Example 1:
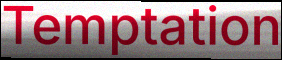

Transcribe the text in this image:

Temptation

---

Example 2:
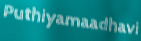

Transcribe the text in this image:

Puthiyamaadhavi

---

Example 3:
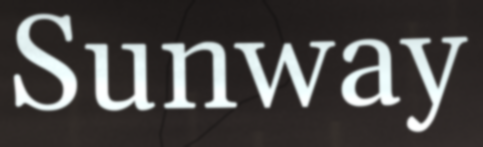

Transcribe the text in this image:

Sunway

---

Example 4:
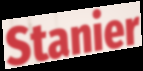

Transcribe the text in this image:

Stanier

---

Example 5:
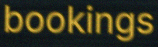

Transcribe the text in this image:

bookings